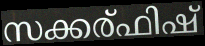
സക്കര്ഫിഷ്